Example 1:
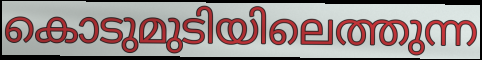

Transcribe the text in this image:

കൊടുമുടിയിലെത്തുന്ന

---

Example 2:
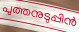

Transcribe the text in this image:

പുത്തനുടുപ്പിൻ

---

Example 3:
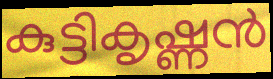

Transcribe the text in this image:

കുട്ടികൃഷ്ണൻ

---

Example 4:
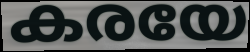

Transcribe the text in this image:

കരയേ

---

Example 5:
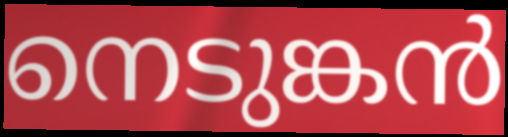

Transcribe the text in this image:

നെടുങ്കൻ